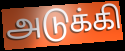
அடுக்கி